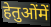
हेतुओंमें